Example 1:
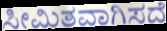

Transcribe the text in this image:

ಸೀಮಿತವಾಗಿಸದೆ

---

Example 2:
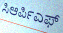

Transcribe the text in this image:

ಸಿಆರ್ಪಿಎಫ್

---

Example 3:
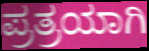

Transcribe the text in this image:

ಪ್ರತ್ರಯಾಗಿ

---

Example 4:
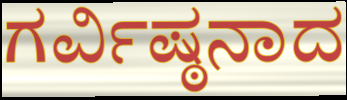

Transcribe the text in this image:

ಗರ್ವಿಷ್ಠನಾದ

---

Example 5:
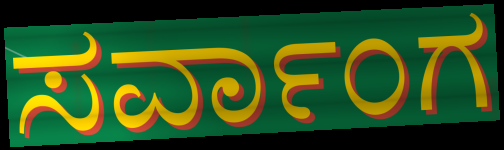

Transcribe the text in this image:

ಸರ್ವಾಂಗ